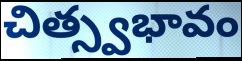
చిత్స్వభావం